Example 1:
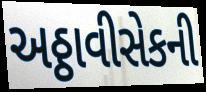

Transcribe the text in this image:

અઠ્ઠાવીસેકની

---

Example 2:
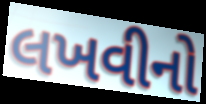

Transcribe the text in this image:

લખવીનો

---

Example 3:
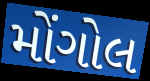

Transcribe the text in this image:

મોંગોલ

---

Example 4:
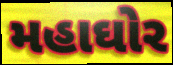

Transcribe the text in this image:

મહાઘોર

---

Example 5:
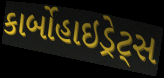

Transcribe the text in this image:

કાર્બોહાઇડ્રેટ્સ